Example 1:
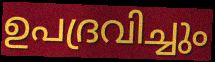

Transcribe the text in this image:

ഉപദ്രവിച്ചും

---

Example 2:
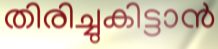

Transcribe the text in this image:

തിരിച്ചുകിട്ടാൻ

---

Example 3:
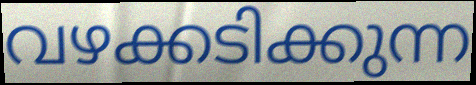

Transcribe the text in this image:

വഴക്കടിക്കുന്ന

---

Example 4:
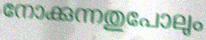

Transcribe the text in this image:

നോക്കുന്നതുപോലും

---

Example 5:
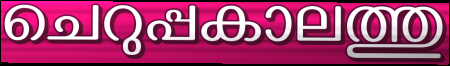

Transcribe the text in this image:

ചെറുപ്പകാലത്തു